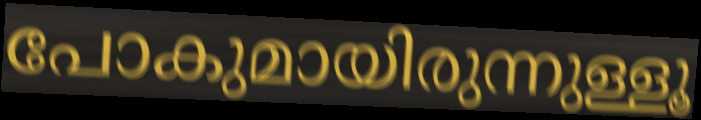
പോകുമായിരുന്നുള്ളൂ